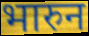
भारुन